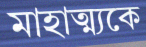
মাহাত্ম্যকে